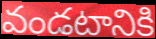
వండటానికి